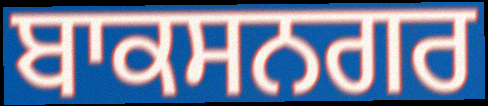
ਬਾਕਸਨਗਰ